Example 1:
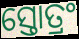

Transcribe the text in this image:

ସ୍ତୋତ୍ରଂ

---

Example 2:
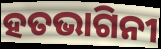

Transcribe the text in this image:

ହତଭାଗିନୀ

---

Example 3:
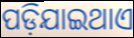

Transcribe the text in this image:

ପଡ଼ିଯାଇଥାଏ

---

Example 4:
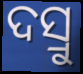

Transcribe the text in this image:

ଦସ୍ରୁ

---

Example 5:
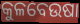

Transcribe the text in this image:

କୁଳବେଉଷା